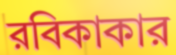
রবিকাকার